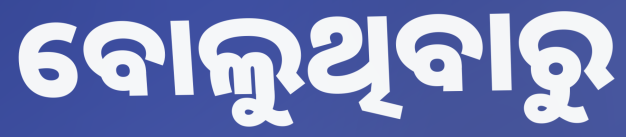
ବୋଲୁଥିବାରୁ